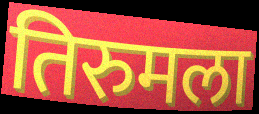
तिरुमला